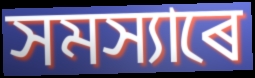
সমস্যাৰে